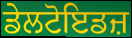
ਡੇਲਟੋਇਡਜ਼